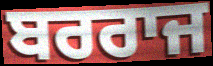
ਬਰਰਾਜ